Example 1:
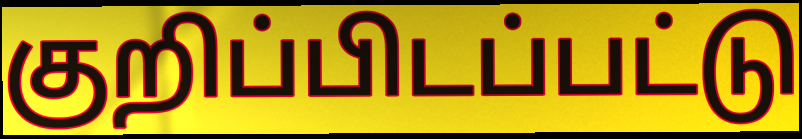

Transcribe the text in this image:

குறிப்பிடப்பட்டு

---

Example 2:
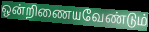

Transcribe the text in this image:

ஒன்றிணையவேண்டும்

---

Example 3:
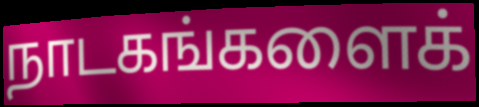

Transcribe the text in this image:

நாடகங்களைக்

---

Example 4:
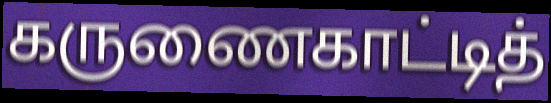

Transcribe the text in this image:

கருணைகாட்டித்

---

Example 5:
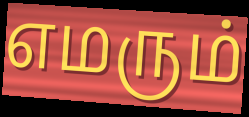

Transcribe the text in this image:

எமரும்